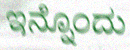
ಇನ್ನೊಂದು